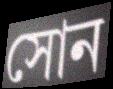
সোন